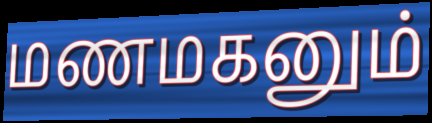
மணமகனும்